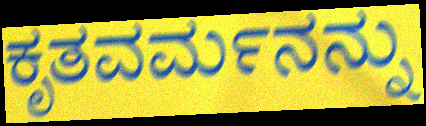
ಕೃತವರ್ಮನನ್ನು